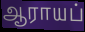
ஆராயப்